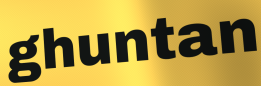
ghuntan